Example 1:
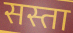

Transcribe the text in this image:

सस्ता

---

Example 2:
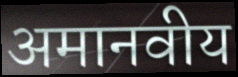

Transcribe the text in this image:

अमानवीय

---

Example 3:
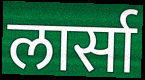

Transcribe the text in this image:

लार्सा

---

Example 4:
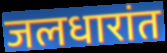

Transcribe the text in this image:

जलधारांत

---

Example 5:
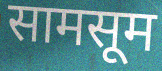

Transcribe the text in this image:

सामसूम